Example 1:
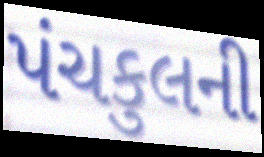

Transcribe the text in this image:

પંચકુલની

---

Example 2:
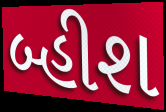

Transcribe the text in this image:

બ્હીશ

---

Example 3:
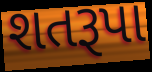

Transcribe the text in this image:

શતરૂપા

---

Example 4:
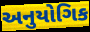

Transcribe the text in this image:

અનુયોગિક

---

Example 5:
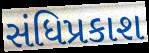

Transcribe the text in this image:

સંધિપ્રકાશ